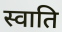
स्वाति